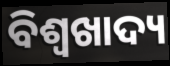
ବିଶ୍ୱଖାଦ୍ୟ